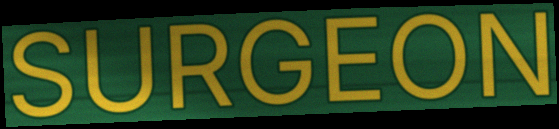
SURGEON